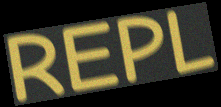
REPL